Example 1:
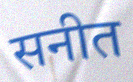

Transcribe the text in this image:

सनीत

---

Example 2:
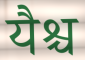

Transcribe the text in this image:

यैश्च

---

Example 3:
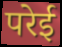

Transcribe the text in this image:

परेई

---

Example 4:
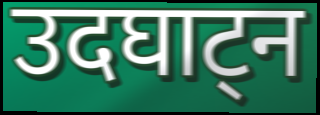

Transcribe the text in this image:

उदघाट्न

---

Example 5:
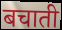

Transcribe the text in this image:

बचाती